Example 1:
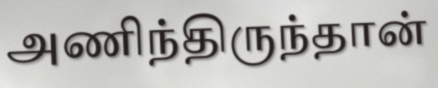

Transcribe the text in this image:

அணிந்திருந்தான்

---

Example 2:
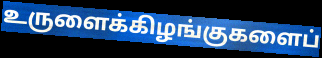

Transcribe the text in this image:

உருளைக்கிழங்குகளைப்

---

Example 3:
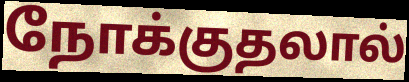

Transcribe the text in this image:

நோக்குதலால்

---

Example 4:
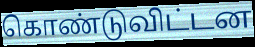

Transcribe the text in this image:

கொண்டுவிட்டன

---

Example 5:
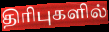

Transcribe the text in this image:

திரிபுகளில்